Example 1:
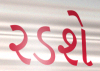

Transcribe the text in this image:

રડશે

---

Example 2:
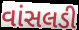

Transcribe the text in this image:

વાંસલડી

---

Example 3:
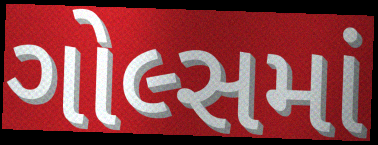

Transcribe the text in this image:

ગોલ્સમાં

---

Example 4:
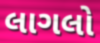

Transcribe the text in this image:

લાગલો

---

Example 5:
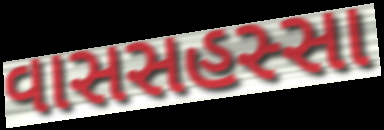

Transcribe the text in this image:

વાસસહસ્સા